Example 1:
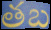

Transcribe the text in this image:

తబ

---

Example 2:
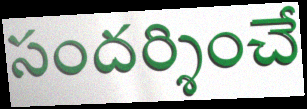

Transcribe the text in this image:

సందర్శించే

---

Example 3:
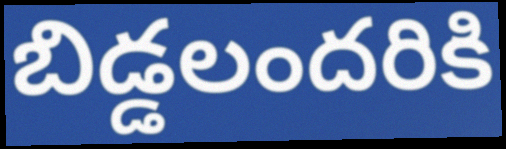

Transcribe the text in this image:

బిడ్డలందరికి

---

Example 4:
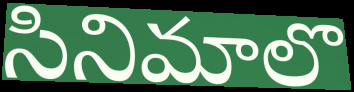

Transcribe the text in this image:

సినిమాలొ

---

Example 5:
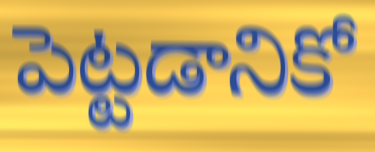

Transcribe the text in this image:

పెట్టడానికో